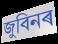
জুবিনৰ